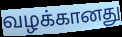
வழக்கானது